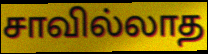
சாவில்லாத